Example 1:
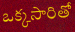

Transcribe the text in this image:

ఒక్కసారితో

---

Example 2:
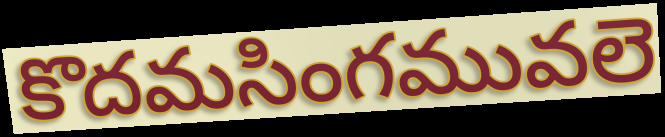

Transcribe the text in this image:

కొదమసింగమువలె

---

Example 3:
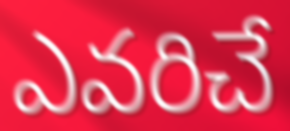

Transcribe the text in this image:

ఎవరిచే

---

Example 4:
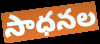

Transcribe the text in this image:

సాధనల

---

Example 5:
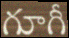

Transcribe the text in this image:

గూగీ